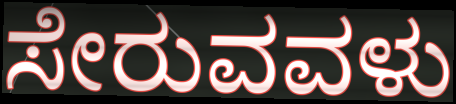
ಸೇರುವವಳು